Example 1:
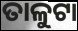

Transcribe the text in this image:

ତାଳୁଟା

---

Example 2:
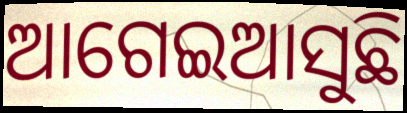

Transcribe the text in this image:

ଆଗେଇଆସୁଛି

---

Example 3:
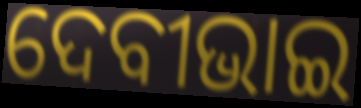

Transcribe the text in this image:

ଦେବୀଭାଇ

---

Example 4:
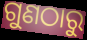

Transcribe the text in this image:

ଗୁଣଠାରୁ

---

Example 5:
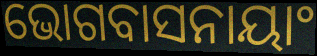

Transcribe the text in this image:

ଭୋଗବାସନାୟାଂ